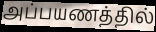
அப்பயணத்தில்